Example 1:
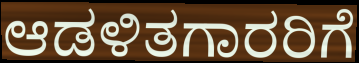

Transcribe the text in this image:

ಆಡಳಿತಗಾರರಿಗೆ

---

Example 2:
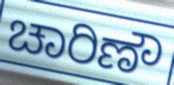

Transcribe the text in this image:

ಚಾರಿಣೌ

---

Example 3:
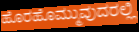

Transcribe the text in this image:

ಹೊರಹೊಮ್ಮುವುದರಲ್ಲಿ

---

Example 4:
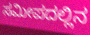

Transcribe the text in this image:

ಸಮೀಪದಲ್ಲಿನ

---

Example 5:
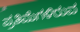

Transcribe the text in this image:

ಪ್ರತಿಮೆಗಳಿರುವ